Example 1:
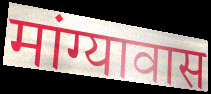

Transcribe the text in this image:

मांग्यावास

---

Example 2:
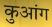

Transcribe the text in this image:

कुआंग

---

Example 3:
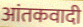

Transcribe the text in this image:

आंतकवादी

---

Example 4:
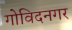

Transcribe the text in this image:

गोविदनगर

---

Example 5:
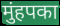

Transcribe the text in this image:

मुंहपका